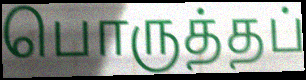
பொருத்தப்